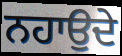
ਨਹਾਉਦੇ